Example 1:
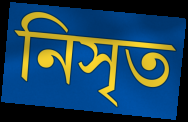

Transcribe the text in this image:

নিসৃত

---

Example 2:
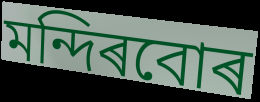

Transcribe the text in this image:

মন্দিৰবোৰ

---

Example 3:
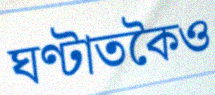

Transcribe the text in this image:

ঘণ্টাতকৈও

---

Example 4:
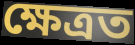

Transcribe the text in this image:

ক্ষেত্ৰত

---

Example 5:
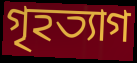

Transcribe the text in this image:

গৃহত্যাগ